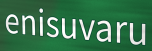
enisuvaru